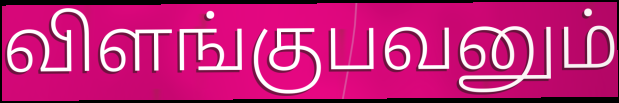
விளங்குபவனும்